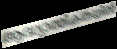
ആദ്ധ്യാത്മികതയിൽ